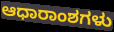
ಆಧಾರಾಂಶಗಳು